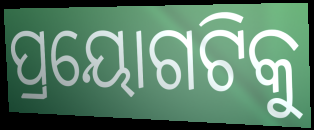
ପ୍ରୟୋଗଟିକୁ